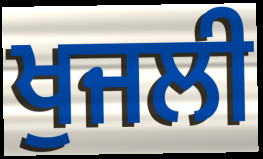
ਖੁਜਲੀ